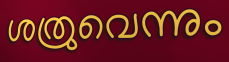
ശത്രുവെന്നും